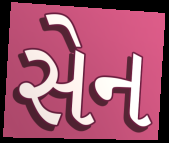
સેન